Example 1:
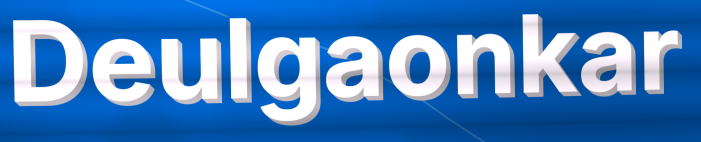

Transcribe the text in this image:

Deulgaonkar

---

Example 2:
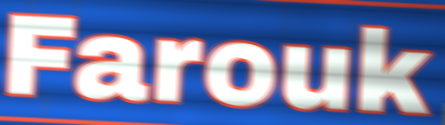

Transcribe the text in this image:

Farouk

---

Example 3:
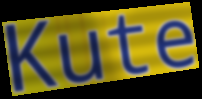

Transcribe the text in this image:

Kute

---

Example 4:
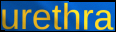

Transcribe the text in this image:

urethra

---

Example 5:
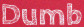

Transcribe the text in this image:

Dumb